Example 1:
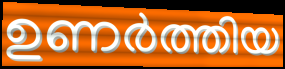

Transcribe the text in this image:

ഉണർത്തിയ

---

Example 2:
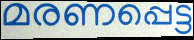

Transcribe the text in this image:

മരണപ്പെട്ട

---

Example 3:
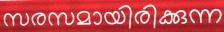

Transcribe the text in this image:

സരസമായിരിക്കുന്ന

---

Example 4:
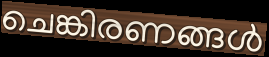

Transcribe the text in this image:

ചെങ്കിരണങ്ങൾ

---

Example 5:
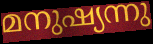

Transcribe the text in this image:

മനുഷ്യന്നു